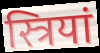
स्त्रियां